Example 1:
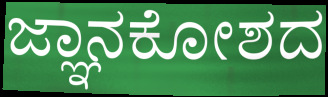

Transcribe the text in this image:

ಜ್ಞಾನಕೋಶದ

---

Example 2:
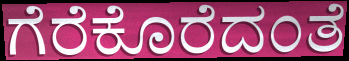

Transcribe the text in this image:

ಗೆರೆಕೊರೆದಂತೆ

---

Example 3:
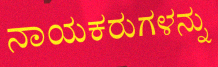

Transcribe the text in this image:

ನಾಯಕರುಗಳನ್ನು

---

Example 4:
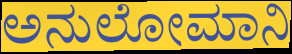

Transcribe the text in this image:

ಅನುಲೋಮಾನಿ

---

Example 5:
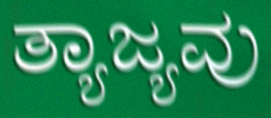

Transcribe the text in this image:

ತ್ಯಾಜ್ಯವು